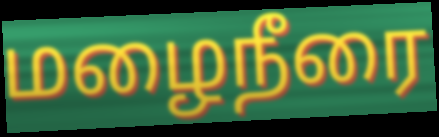
மழைநீரை